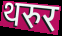
थरुर